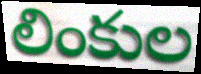
లింకుల